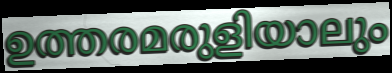
ഉത്തരമരുളിയാലും